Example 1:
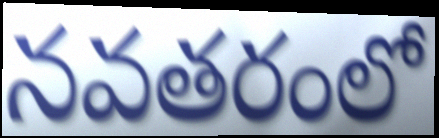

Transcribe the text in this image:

నవతరంలో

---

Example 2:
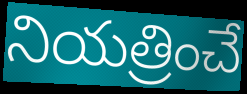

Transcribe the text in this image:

నియత్రించే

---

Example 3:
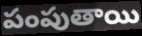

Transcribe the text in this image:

పంపుతాయి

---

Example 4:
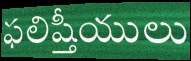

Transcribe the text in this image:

ఫలిష్తీయులు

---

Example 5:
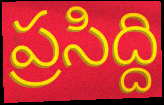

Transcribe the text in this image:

ప్రసిద్ది